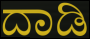
ದಾಡಿ